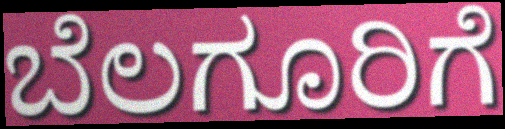
ಬೆಲಗೂರಿಗೆ